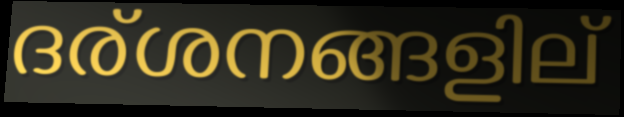
ദര്ശനങ്ങളില്